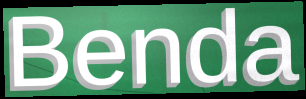
Benda